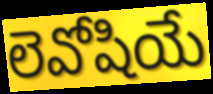
లెవోషియే